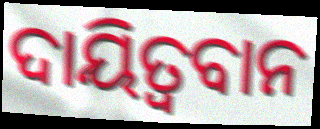
ଦାୟିତ୍ଵବାନ